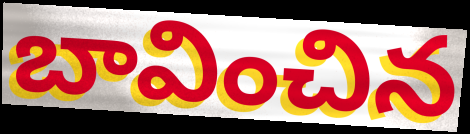
బావించిన